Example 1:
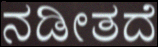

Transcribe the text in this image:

ನಡೀತದೆ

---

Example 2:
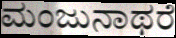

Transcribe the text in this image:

ಮಂಜುನಾಥರೆ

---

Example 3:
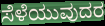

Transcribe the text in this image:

ಸೆಳೆಯುವುದರ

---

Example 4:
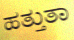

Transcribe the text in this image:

ಹತ್ತುತಾ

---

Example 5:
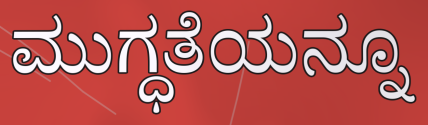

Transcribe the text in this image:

ಮುಗ್ಧತೆಯನ್ನೂ